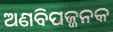
ଅଣବିପଜ୍ଜନକ